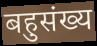
बहुसंख्य